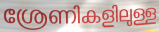
ശ്രേണികളിലുള്ള